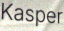
Kasper